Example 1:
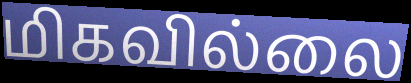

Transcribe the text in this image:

மிகவில்லை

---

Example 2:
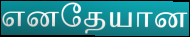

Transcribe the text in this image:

எனதேயான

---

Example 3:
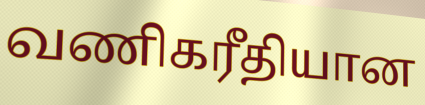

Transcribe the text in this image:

வணிகரீதியான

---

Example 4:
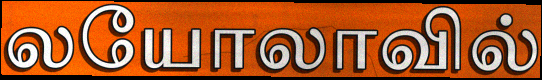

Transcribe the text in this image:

லயோலாவில்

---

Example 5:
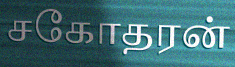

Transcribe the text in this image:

சகோதரன்